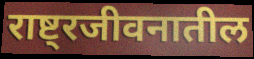
राष्ट्रजीवनातील